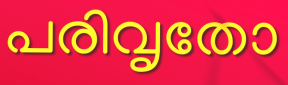
പരിവൃതോ